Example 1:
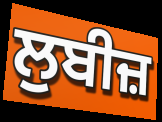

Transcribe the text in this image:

ਲੁਬੀਜ਼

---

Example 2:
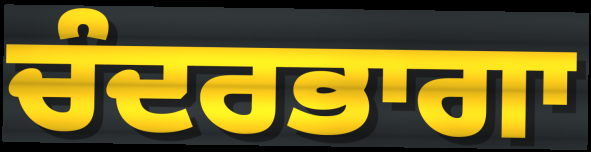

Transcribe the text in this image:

ਚੰਦਰਭਾਗਾ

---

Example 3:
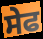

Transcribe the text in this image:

ਸੇਫ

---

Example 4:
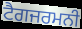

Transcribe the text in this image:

ਟੈਗਜਰਮਨੀ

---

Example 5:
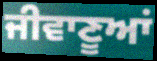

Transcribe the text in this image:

ਜੀਵਾਣੂਆਂ